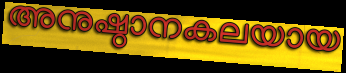
അനുഷ്ഠാനകലയായ